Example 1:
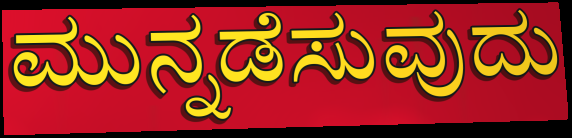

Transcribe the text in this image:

ಮುನ್ನಡೆಸುವುದು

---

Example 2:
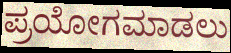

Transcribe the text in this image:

ಪ್ರಯೋಗಮಾಡಲು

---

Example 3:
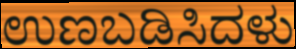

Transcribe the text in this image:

ಉಣಬಡಿಸಿದಳು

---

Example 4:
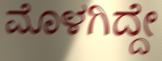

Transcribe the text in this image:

ಮೊಳಗಿದ್ದೇ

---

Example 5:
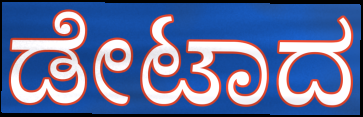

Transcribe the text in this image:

ಡೇಟಾದ